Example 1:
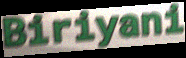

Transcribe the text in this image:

Biriyani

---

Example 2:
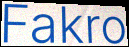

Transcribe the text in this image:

Fakro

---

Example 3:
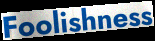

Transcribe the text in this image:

Foolishness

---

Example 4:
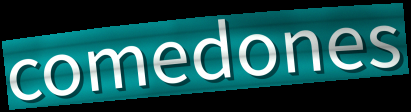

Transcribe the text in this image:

comedones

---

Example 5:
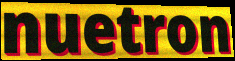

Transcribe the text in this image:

nuetron